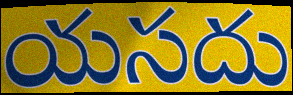
యసదు